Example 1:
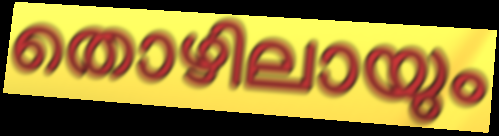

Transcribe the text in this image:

തൊഴിലായും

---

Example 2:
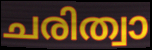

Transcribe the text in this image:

ചരിത്വാ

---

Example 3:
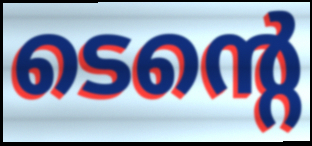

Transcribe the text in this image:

ടെന്റെ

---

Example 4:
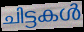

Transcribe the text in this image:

ചിട്ടകൾ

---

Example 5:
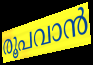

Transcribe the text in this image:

രൂപവാൻ